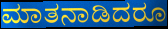
ಮಾತನಾಡಿದರೂ